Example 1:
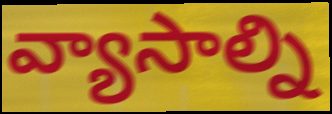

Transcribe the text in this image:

వ్యాసాల్ని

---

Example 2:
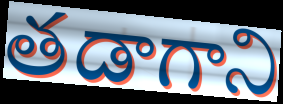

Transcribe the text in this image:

తడాగాని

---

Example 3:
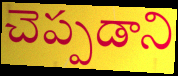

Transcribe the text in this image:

చెప్పడాని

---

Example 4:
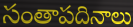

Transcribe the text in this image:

సంతాపదినాలు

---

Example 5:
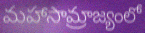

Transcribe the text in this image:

మహాసామ్రాజ్యంలో